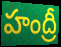
హంద్రీ